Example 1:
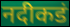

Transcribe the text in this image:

नदीकडं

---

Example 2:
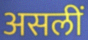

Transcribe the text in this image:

असलीं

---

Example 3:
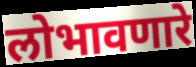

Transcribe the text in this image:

लोभावणारे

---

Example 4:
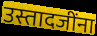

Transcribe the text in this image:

उस्तादजींना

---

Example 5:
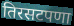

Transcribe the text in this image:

तिरसटपणा